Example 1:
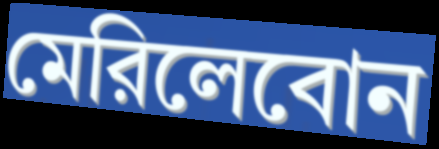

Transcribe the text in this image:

মেরিলেবোন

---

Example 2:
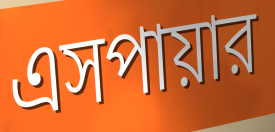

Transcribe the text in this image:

এসপায়ার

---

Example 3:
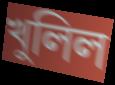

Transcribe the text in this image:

খুলিল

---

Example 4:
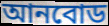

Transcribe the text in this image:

আনবোড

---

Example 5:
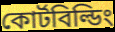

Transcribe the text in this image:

কোর্টবিল্ডিং